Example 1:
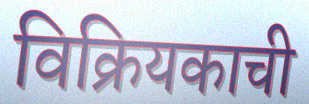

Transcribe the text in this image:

विक्रियकाची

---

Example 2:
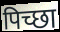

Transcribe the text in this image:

पिच्छा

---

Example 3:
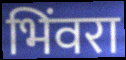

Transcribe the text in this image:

भिंवरा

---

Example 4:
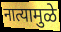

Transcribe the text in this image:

नात्यामुळे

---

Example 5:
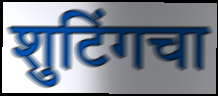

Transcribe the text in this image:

शुटिंगचा